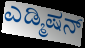
ಎಡ್ಮಿಷನ್